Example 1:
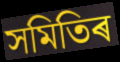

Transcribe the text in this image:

সমিতিৰ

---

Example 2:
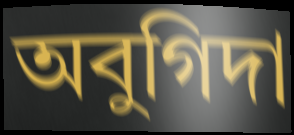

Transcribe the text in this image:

অবুগিদা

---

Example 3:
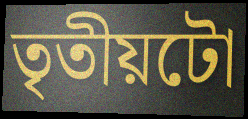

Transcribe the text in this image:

তৃতীয়টো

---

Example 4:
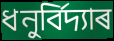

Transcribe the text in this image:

ধনুৰ্বিদ্যাৰ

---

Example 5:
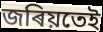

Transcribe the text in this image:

জৰিয়তেই